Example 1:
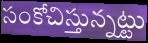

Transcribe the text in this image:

సంకోచిస్తున్నట్టు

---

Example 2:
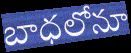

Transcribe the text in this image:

బాధలోనూ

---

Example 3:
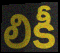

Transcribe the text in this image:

లికీ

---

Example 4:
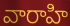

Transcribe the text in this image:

వారాహి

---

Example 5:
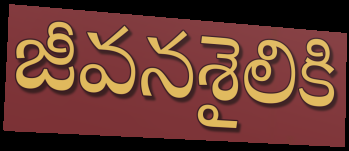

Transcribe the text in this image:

జీవనశైలికి